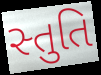
સ્તુતિ